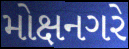
મોક્ષનગરે